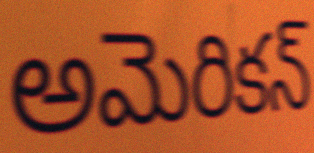
అమెరికన్